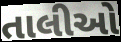
તાલીઓ